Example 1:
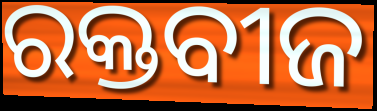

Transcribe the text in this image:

ରକ୍ତବୀଜ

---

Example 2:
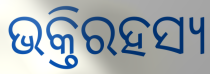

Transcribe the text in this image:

ଭକ୍ତିରହସ୍ୟ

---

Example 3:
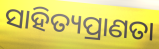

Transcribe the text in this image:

ସାହିତ୍ୟପ୍ରାଣତା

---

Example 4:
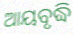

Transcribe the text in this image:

ଆୟବୃଦ୍ଧି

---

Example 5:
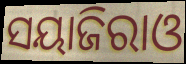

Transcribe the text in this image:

ସୟାଜିରାଓ